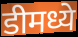
डीमध्ये